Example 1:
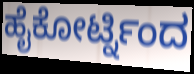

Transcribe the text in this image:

ಹೈಕೋರ್ಟ್ನಿಂದ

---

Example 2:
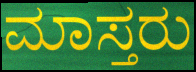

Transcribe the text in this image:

ಮಾಸ್ತರು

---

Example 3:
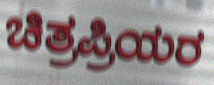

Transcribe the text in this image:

ಚಿತ್ರಪ್ರಿಯರ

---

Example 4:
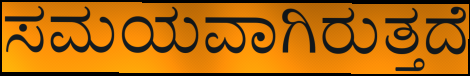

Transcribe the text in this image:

ಸಮಯವಾಗಿರುತ್ತದೆ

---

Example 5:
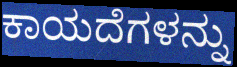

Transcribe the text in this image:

ಕಾಯದೆಗಳನ್ನು